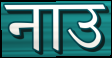
नाउ